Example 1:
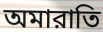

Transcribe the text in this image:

অমারাতি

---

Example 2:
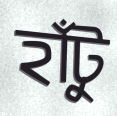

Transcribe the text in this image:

হাঁটু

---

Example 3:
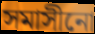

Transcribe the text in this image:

সমাসীনো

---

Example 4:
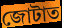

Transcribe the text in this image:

জোটাত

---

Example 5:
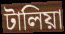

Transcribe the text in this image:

টালিয়া